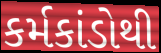
કર્મકાંડોથી